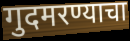
गुदमरण्याचा